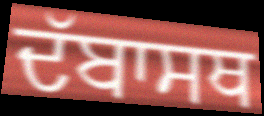
ਦੱਬਾਸਥ